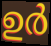
ഉർ